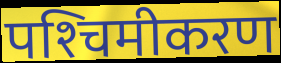
पश्चिमीकरण